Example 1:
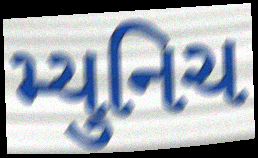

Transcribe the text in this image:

મ્યુનિચ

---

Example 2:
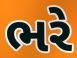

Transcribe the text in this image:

ભરે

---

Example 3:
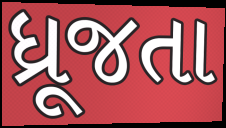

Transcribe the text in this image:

ધ્રૂજતા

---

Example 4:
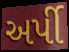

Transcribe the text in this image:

અર્પી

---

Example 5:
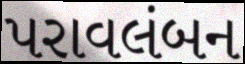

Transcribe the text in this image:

પરાવલંબન